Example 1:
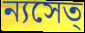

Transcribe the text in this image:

ন্যসেত্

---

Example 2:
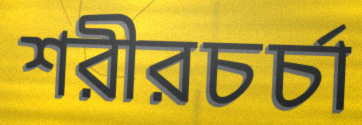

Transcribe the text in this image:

শরীরচর্চা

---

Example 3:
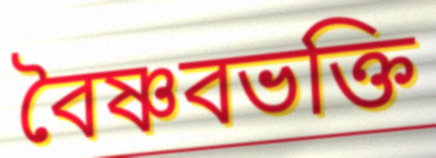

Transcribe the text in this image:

বৈষ্ণবভক্তি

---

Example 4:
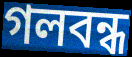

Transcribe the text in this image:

গলবন্ধ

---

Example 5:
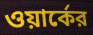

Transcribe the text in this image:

ওয়ার্কের